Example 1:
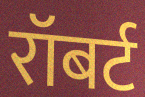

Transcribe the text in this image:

रॉबर्ट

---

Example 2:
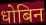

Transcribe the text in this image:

धोबिन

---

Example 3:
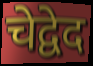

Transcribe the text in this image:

चेद्वेद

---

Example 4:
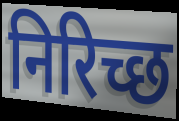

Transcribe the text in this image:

निरिच्छ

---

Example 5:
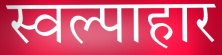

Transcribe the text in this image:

स्वल्पाहार